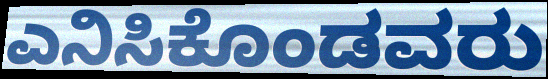
ಎನಿಸಿಕೊಂಡವರು